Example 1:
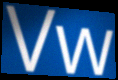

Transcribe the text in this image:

Vw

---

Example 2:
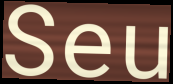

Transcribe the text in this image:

Seu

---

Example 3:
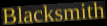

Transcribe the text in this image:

Blacksmith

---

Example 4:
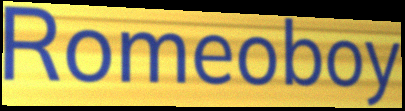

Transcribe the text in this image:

Romeoboy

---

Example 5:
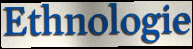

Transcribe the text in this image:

Ethnologie